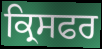
ਕ੍ਰਿਸਫਰ